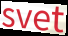
svet